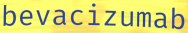
bevacizumab